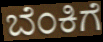
ಬೆಂಕಿಗೆ